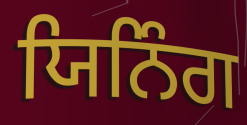
ਯਿਨਿੰਗ